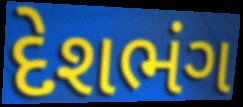
દેશભંગ